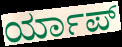
ರ್ಯಾಪ್